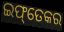
ଇଫ୍‌ତେକର